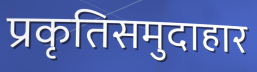
प्रकृतिसमुदाहार